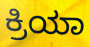
ಕ್ರಿಯಾ